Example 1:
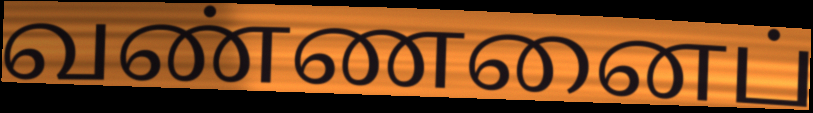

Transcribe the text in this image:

வண்ணனைப்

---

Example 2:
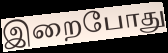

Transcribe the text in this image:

இறைபோது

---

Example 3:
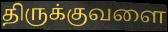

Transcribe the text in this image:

திருக்குவளை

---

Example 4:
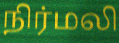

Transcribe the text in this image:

நிர்மலி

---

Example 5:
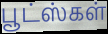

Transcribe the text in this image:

பூட்ஸ்கள்